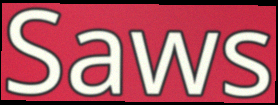
Saws